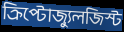
ক্রিপ্টোজ্যুলজিস্ট